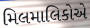
મિલમાલિકોએ